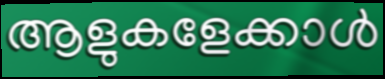
ആളുകളേക്കാൾ